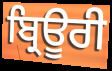
ਬ੍ਰਿਊਰੀ